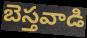
బెస్తవాడి